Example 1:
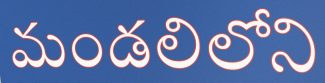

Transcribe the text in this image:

మండలిలోని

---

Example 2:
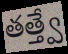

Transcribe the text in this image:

తత్త్వే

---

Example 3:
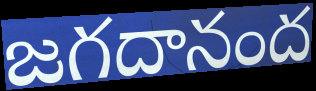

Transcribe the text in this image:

జగదానంద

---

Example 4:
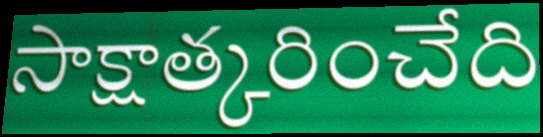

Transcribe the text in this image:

సాక్షాత్కరించేది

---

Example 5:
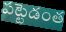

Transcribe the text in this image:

పట్టెడంత